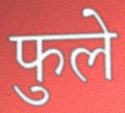
फुले